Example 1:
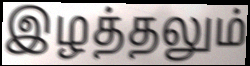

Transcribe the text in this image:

இழத்தலும்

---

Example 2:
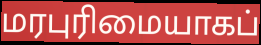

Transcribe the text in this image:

மரபுரிமையாகப்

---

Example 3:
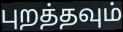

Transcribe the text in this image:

புறத்தவும்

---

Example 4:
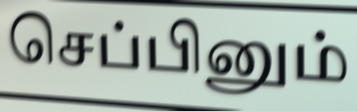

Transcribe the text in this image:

செப்பினும்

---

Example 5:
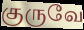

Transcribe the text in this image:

குருவே